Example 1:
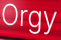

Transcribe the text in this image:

Orgy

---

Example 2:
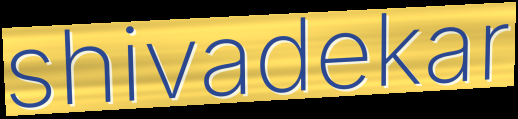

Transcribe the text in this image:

shivadekar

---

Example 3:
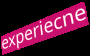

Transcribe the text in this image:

experiecne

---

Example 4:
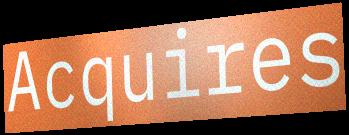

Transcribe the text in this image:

Acquires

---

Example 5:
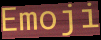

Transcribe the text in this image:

Emoji